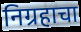
निग्रहाचा